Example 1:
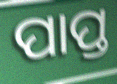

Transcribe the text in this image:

ପାପ୍ତ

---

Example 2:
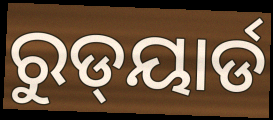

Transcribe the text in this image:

ରୁଡ୍‌ୟାର୍ଡ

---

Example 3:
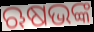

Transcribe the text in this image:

ଋଷଭଙ୍କ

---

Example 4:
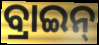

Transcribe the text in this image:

ବ୍ରାଇନ୍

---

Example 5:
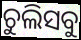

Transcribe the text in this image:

ଚୁଲିସବୁ